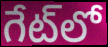
గేట్‌లో